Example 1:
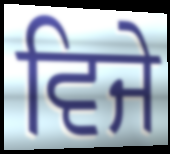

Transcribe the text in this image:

ਵਿਜੇ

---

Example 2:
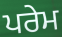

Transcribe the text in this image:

ਪਰੇਮ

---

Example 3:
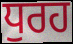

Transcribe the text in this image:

ਧੁਰਹ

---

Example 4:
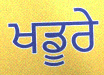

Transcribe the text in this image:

ਖਡੂਰੇ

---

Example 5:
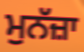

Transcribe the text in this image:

ਮੁਨੱਜ਼ਾ